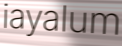
iayalum